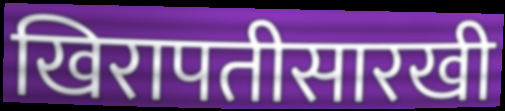
खिरापतीसारखी